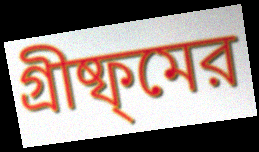
গ্রীষ্ফ্মের